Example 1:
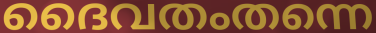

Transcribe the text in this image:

ദൈവതംതന്നെ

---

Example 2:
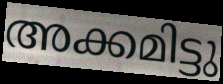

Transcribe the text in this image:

അക്കമിട്ടു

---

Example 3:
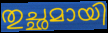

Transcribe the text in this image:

തുച്ഛമായി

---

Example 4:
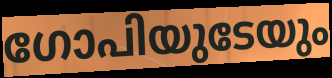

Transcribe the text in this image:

ഗോപിയുടേയും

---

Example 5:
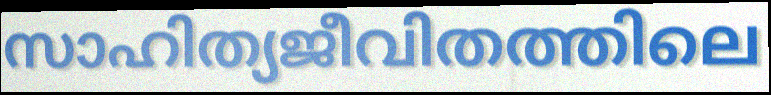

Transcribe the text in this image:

സാഹിത്യജീവിതത്തിലെ